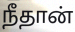
நீதான்